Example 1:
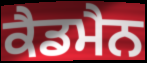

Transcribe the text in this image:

ਕੈਡਮੈਨ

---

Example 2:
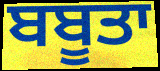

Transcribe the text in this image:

ਬਬੂਤਾ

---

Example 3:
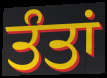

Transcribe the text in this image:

ਤੰਤਾਂ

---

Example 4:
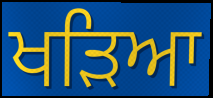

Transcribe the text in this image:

ਖੜਿਆ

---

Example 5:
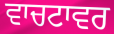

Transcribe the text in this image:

ਵਾਚਟਾਵਰ